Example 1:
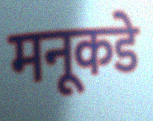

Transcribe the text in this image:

मनूकडे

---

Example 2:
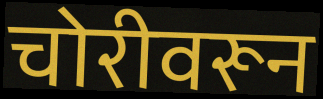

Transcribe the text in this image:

चोरीवरून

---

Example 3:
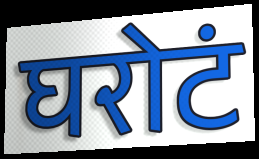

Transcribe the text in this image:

घरोटं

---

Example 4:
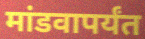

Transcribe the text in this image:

मांडवापर्यंत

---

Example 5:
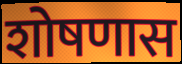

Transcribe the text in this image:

शोषणास